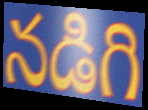
నడిగి